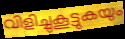
വിളിച്ചുകൂട്ടുകയും